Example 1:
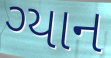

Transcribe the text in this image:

ગ્યાન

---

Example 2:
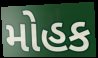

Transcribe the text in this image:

મોહક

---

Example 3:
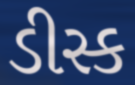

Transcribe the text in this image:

ડીસ્ક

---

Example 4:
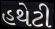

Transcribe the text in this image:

હથેટી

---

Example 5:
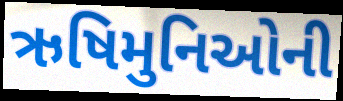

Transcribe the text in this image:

ઋષિમુનિઓની